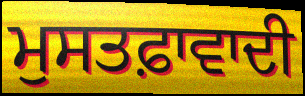
ਮੁਸਤਫ਼ਾਵਾਦੀ